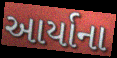
આર્યાના